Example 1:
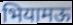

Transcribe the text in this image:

भियामऊ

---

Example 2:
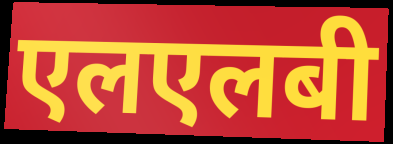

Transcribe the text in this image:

एलएलबी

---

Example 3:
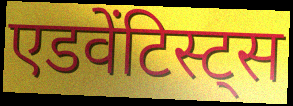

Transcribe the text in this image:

एडवेंटिस्ट्स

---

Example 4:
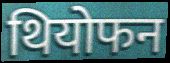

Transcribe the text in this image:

थियोफन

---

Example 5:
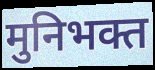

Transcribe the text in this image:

मुनिभक्त